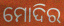
ମୋଦିର